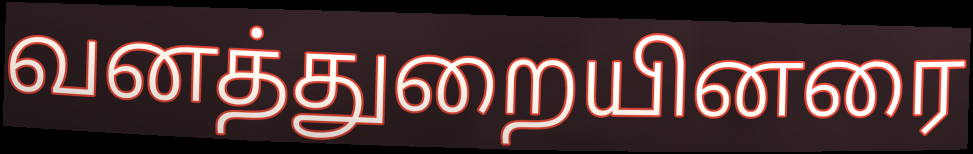
வனத்துறையினரை